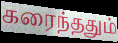
கரைந்ததும்